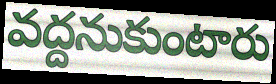
వద్దనుకుంటారు